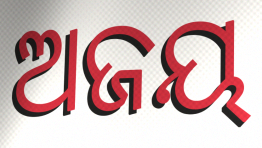
ଅଜୟ